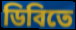
ডিবিতে